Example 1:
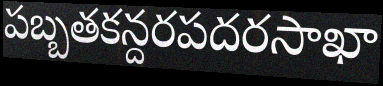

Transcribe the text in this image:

పబ్బతకన్దరపదరసాఖా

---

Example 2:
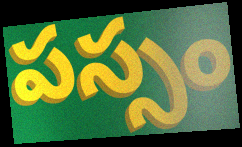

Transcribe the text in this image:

పస్సం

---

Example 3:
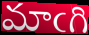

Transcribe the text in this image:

మాఁగి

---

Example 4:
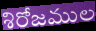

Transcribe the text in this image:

శిరోజముల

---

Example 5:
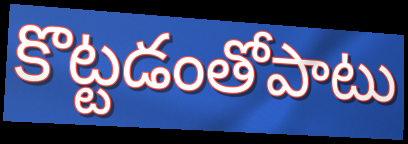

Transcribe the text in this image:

కొట్టడంతోపాటు